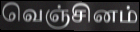
வெஞ்சினம்